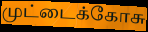
முட்டைக்கோசு